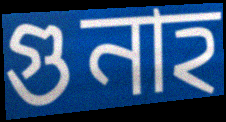
গুনাহ